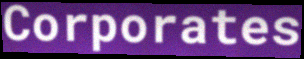
Corporates